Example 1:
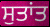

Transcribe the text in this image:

ਸੁਤਾਂਤ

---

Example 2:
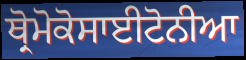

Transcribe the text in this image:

ਥ੍ਰੋਮੋਕੋਸਾਈਟੋਨੀਆ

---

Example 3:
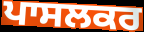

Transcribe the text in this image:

ਪਾਸਲਕਰ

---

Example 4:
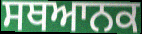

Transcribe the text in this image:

ਸਥਆਨਕ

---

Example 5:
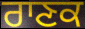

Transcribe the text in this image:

ਰਾਣਕ